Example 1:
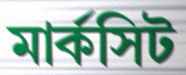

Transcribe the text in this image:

মার্কসিট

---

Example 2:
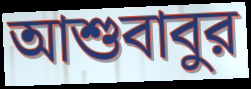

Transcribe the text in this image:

আশুবাবুর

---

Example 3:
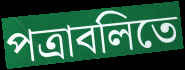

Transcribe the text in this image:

পত্রাবলিতে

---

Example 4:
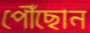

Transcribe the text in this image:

পৌঁছোন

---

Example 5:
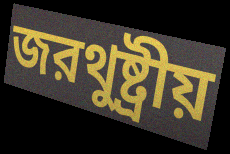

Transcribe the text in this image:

জরথুষ্ট্রীয়